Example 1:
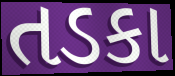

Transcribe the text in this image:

તડકા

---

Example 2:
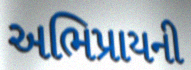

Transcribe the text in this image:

અભિપ્રાયની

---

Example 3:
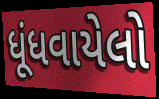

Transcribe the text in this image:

ધૂંધવાયેલો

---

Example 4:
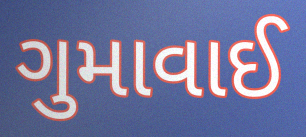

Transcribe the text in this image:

ગુમાવાઈ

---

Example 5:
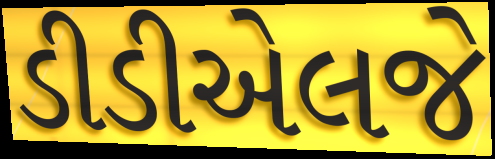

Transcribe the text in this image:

ડીડીએલજે